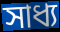
সাধ্য